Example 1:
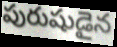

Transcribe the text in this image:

పురుషుడైన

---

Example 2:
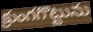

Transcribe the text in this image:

క్రుంగగొట్టును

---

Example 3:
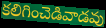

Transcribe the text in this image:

కలిగించెడివాడవు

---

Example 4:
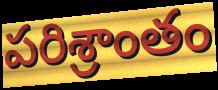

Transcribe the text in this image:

పరిశ్రాంతం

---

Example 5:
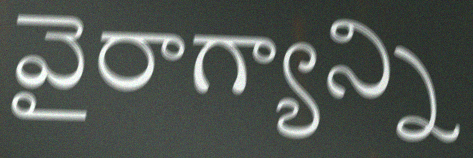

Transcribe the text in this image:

వైరాగ్యాన్ని